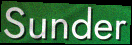
Sunder